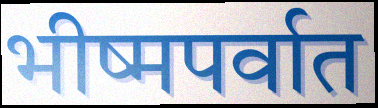
भीष्मपर्वात